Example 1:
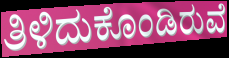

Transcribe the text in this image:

ತಿಳಿದುಕೊಂಡಿರುವೆ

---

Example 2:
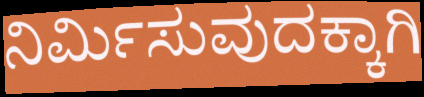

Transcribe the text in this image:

ನಿರ್ಮಿಸುವುದಕ್ಕಾಗಿ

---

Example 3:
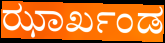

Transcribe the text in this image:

ಝಾರ್ಖಂಡ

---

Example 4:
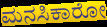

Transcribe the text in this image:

ಮನಸಿಕಾರೋ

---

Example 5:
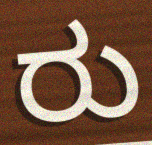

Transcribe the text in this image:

ರು